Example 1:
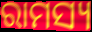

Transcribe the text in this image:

ରାମସ୍ୟ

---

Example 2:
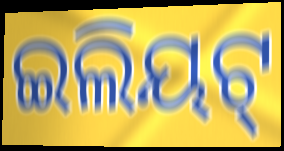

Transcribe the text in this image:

ଇଲିୟଟ୍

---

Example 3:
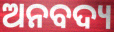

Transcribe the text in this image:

ଅନବଦ୍ୟ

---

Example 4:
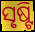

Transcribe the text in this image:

ସୃଷ୍ଟି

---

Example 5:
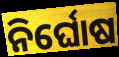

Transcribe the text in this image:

ନିର୍ଘୋଷ